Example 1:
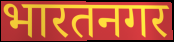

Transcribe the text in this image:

भारतनगर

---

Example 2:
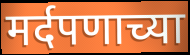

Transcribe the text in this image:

मर्दपणाच्या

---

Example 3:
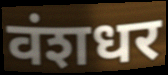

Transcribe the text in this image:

वंशधर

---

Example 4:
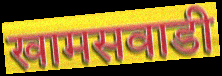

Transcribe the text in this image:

खामसवाडी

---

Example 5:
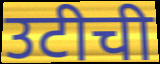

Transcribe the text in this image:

उटीची